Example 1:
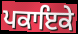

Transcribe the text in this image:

ਪਕਾਇਕੇ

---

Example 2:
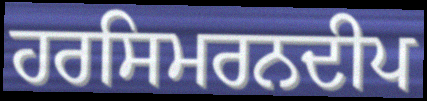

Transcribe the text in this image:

ਹਰਸਿਮਰਨਦੀਪ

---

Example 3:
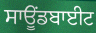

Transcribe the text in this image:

ਸਾਊਂਡਬਾਈਟ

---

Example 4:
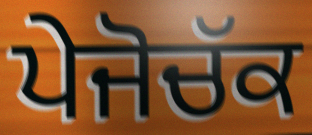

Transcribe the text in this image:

ਪੇਜੋਚੱਕ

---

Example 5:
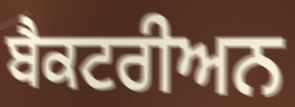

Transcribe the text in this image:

ਬੈਕਟਰੀਅਨ